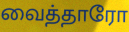
வைத்தாரோ